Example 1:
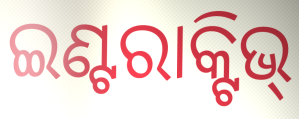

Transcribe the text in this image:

ଇଣ୍ଟରାକ୍ଟିଭ୍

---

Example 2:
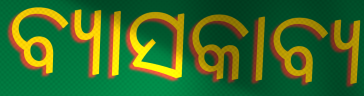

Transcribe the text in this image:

ବ୍ୟାସକାବ୍ୟ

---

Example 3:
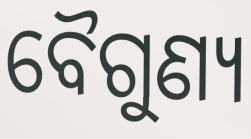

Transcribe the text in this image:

ବୈଗୁଣ୍ୟ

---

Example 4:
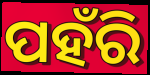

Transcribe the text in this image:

ପହଁରି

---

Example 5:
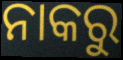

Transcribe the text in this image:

ନାକରୁ